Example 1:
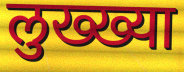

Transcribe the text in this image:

लुख्ख्या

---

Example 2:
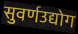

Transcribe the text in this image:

सुवर्णउद्योग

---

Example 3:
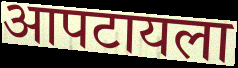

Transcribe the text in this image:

आपटायला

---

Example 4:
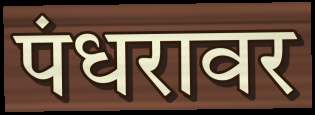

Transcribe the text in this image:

पंधरावर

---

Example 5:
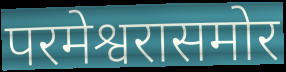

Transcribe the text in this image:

परमेश्वरासमोर